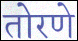
तोरणे